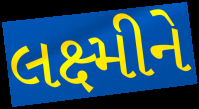
લક્ષ્મીને